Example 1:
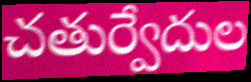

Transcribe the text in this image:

చతుర్వేదుల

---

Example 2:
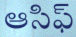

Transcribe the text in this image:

ఆసిఫ్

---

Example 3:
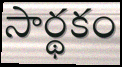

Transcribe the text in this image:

సార్థకం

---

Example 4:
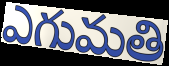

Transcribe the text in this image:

ఎగుమతి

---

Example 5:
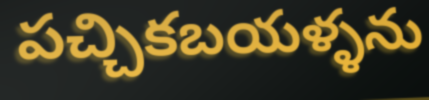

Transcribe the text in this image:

పచ్చికబయళ్ళను